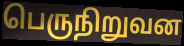
பெருநிறுவன